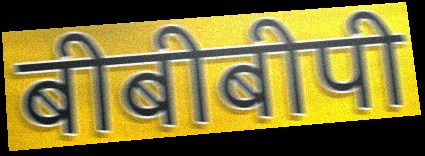
बीबीबीपी